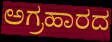
ಅಗ್ರಹಾರದ